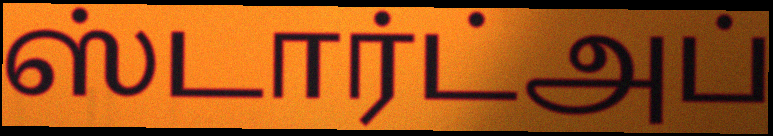
ஸ்டார்ட்அப்